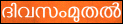
ദിവസംമുതൽ